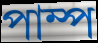
পাম্প